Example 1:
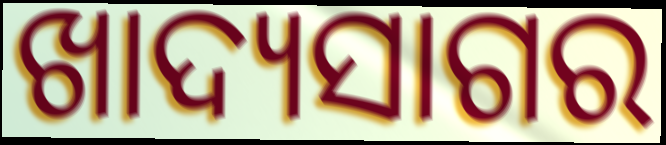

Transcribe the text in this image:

ଖାଦ୍ୟସାଗର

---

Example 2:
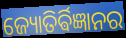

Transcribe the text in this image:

ଜ୍ୟୋତିର୍ଵିଜ୍ଞାନର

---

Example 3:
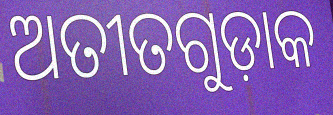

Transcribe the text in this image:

ଅତୀତଗୁଡ଼ାକ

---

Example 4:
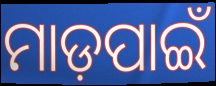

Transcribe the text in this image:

ମାଡ଼ପାଇଁ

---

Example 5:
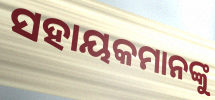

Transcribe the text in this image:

ସହାୟକମାନଙ୍କୁ